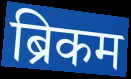
ब्रिकम